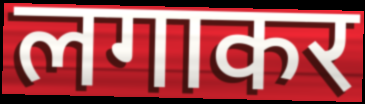
लगाकर